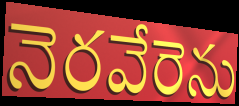
నెరవేరెను